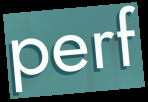
perf